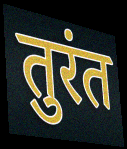
तुरंत